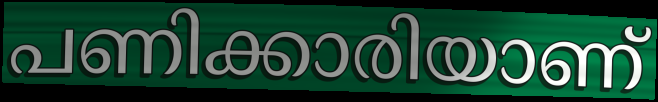
പണിക്കാരിയാണ്